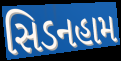
સિડનહામ